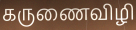
கருணைவிழி